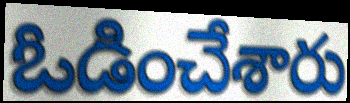
ఓడించేశారు